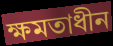
ক্ষমতাধীন